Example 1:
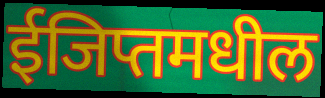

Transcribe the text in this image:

ईजिप्तमधील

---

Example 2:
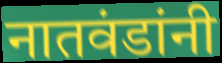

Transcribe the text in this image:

नातवंडांनी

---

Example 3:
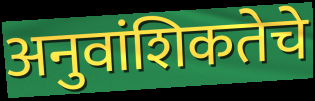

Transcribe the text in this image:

अनुवांशिकतेचे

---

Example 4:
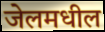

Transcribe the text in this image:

जेलमधील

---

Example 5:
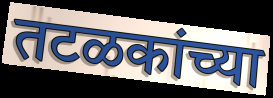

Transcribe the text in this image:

तटळकांच्या